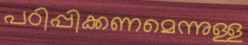
പഠിപ്പിക്കണമെന്നുള്ള